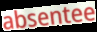
absentee